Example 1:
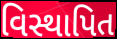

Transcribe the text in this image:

વિસ્થાપિત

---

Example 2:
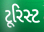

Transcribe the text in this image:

ટૂરિસ્ટ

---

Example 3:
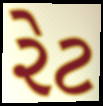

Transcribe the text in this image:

રેટ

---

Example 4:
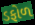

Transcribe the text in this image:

ડફોળ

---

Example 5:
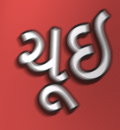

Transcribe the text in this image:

ચૂઇ